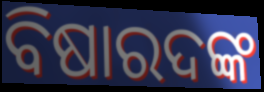
ବିଷାରଦଙ୍କ